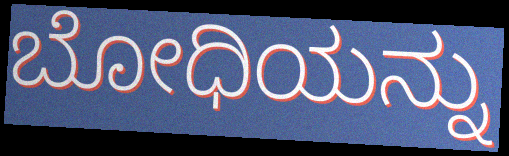
ಬೋಧಿಯನ್ನು